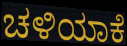
ಚಳಿಯಾಕೆ